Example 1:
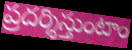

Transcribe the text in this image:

ప్రదర్శిస్తుంటాం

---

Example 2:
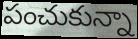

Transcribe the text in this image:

పంచుకున్నా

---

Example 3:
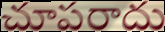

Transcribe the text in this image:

చూపరాదు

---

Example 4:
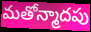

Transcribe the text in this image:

మతోన్మాదపు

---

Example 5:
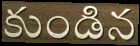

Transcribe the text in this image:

కుండిన